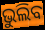
ଭୁଲିବ